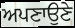
ਅਪਣਾਉਣੇ